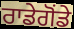
ਰਾਡੇਗੋਂਡੇ